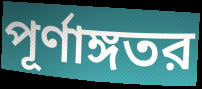
পূর্ণাঙ্গতর